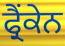
ਫ੍ਰੈਂਕੇਨ